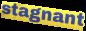
stagnant